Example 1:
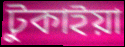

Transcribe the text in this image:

টুকাইয়া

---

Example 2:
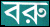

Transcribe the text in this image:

বরু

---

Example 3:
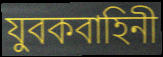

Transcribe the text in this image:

যুবকবাহিনী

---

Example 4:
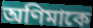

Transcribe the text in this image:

অণিমাকে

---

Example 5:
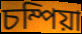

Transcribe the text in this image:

চম্পিয়া